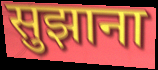
सुझाना